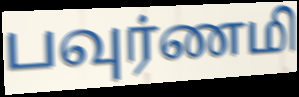
பவுர்ணமி